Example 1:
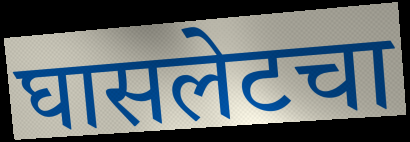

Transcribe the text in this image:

घासलेटचा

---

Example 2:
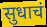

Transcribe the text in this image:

सुधाचं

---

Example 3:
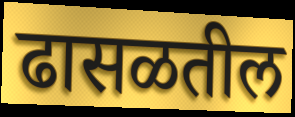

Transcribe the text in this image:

ढासळतील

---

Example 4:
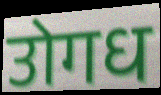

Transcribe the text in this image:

उोगध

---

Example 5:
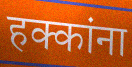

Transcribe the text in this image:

हक्कांना